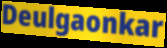
Deulgaonkar